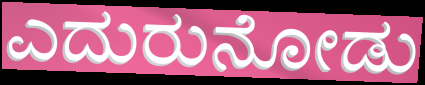
ಎದುರುನೋಡು